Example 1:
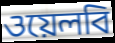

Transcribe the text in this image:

ওয়েলবি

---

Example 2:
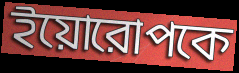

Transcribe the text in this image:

ইয়োরোপকে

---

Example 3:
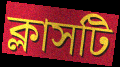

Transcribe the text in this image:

ক্লাসটি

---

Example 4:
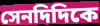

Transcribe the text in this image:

সেনদিদিকে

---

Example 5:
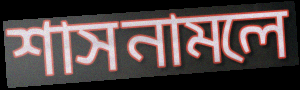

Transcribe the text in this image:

শাসনামলে